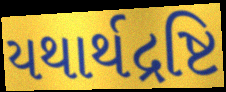
યથાર્થદ્રષ્ટિ